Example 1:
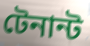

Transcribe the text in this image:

টেনান্ট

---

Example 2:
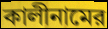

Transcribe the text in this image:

কালীনামের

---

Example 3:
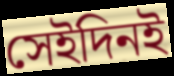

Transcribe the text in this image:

সেইদিনই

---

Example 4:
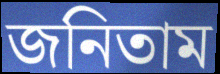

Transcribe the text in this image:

জনিতাম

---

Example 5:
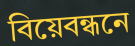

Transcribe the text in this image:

বিয়েবন্ধনে